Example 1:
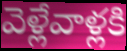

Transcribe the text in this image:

వెళ్లేవాళ్లకి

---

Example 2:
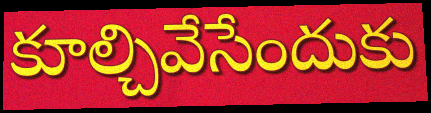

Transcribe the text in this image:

కూల్చివేసేందుకు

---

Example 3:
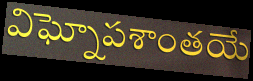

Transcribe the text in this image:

విఘ్నోపశాంతయే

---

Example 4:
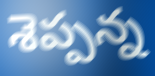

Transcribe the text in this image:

శెప్పన్న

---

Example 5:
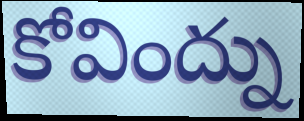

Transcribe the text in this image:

కోవింద్ను